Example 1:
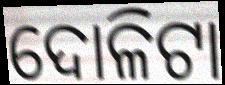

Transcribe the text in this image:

ଦୋଳିଟା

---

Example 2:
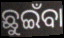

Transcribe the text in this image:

ଛୁଇଁବା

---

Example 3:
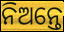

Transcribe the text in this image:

ନିଅନ୍ତେ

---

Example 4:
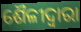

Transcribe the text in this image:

ଶୈଳୀଦ୍ୱାରା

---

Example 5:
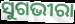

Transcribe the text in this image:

ସୁଗଭୀରା